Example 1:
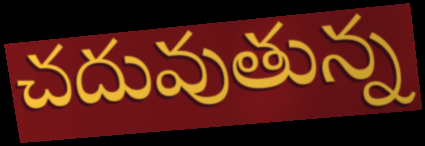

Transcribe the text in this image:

చదువుతున్న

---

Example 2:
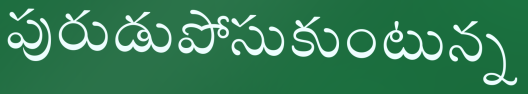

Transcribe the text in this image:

పురుడుపోసుకుంటున్న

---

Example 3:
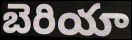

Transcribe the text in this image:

బెరియా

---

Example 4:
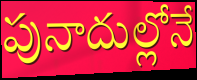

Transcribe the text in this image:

పునాదుల్లోనే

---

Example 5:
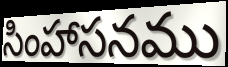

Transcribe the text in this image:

సింహాసనము